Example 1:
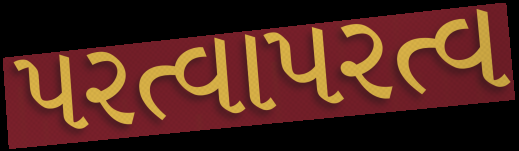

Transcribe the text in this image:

પરત્વાપરત્વ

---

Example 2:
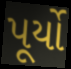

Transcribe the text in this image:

પૂર્યો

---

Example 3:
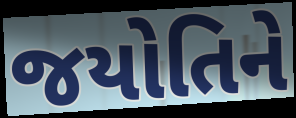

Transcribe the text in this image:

જયોતિને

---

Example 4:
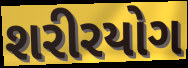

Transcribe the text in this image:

શરીરયોગ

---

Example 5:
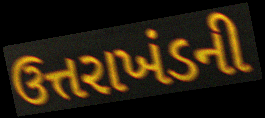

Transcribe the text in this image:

ઉત્તરાખંડની